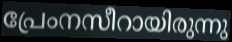
പ്രേംനസീറായിരുന്നു